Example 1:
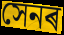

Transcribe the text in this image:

সেনৰ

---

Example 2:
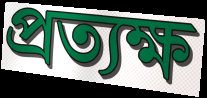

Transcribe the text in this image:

প্ৰত্যক্ষ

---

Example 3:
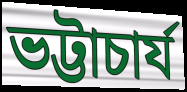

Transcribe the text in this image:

ভট্টাচাৰ্য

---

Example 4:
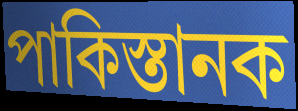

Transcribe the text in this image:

পাকিস্তানক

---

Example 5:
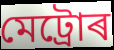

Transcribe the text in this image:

মেট্ৰোৰ